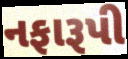
નફારૂપી